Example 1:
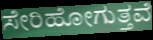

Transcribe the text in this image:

ಸೇರಿಹೋಗುತ್ತವೆ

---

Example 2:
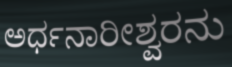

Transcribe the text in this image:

ಅರ್ಧನಾರೀಶ್ವರನು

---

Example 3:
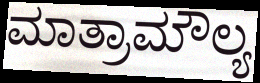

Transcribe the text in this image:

ಮಾತ್ರಾಮೌಲ್ಯ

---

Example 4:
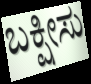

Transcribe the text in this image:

ಬಕ್ಷೀಸು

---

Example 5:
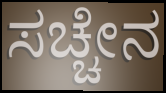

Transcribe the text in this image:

ಸಚ್ಚೇನ